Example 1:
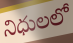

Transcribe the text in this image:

నిధులలో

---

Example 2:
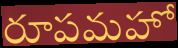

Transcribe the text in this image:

రూపమహో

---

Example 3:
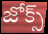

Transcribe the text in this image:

జోక్స్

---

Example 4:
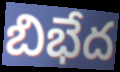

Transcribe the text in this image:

బిభేద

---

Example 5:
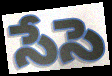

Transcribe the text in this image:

సేసె